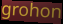
grohon